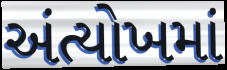
અંત્યોખમાં